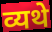
व्यथे